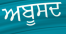
ਅਬੂਸਦ